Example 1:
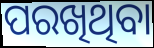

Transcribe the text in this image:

ପରଖିଥିବା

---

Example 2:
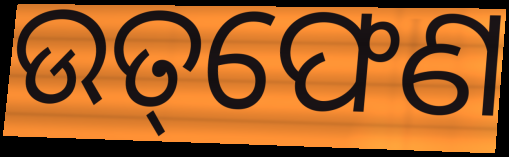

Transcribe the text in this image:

ଉତ୍‌ଫେଣ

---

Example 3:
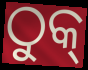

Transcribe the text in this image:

ଠୁକ୍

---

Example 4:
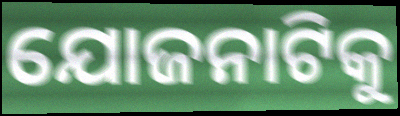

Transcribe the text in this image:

ଯୋଜନାଟିକୁ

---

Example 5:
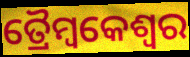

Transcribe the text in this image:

ତ୍ରୈମ୍ବକେଶ୍ୱର